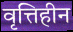
वृत्तिहीन